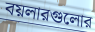
বয়লারগুলোর